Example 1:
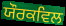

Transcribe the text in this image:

ਯੌਰਕਵਿਲ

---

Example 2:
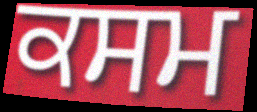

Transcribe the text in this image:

ਕਸਮ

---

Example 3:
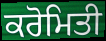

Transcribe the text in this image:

ਕਰੋਮਿਤੀ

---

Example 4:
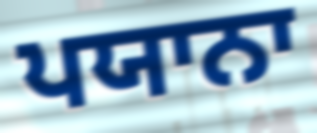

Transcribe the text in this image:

ਪਯਾਨਾ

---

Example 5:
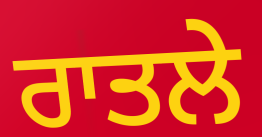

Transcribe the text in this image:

ਰਾਤਲੇ